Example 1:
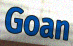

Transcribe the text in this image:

Goan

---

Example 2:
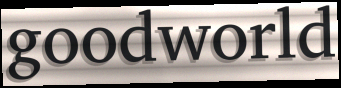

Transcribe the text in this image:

goodworld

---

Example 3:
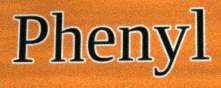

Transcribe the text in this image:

Phenyl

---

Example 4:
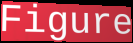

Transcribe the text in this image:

Figure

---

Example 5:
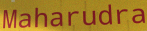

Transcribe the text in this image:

Maharudra